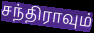
சந்திராவும்